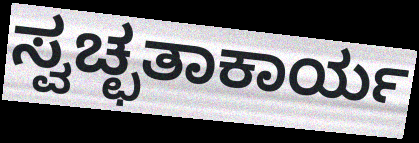
ಸ್ವಚ್ಛತಾಕಾರ್ಯ